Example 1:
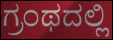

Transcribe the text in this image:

ಗ್ರಂಥದಲ್ಲಿ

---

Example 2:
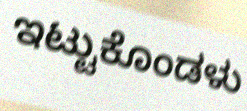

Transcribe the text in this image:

ಇಟ್ಟುಕೊಂಡಳು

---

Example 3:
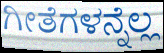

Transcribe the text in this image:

ಗೀತೆಗಳನ್ನೆಲ್ಲ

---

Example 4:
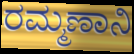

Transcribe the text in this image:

ರಮ್ಮಣಾನಿ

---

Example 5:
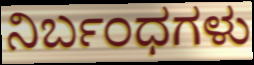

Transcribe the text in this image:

ನಿರ್ಬಂಧಗಳು